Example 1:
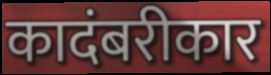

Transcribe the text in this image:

कादंबरीकार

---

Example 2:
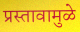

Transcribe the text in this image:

प्रस्तावामुळे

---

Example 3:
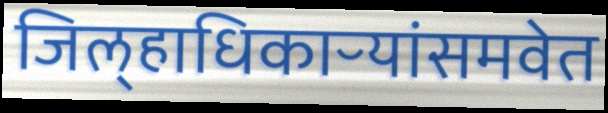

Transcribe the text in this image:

जिल्हाधिकाऱ्यांसमवेत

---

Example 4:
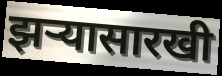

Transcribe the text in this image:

झर्‍यासारखी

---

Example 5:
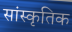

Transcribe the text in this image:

सांस्कृतिक